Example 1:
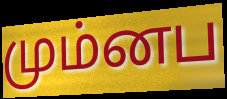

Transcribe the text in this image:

மும்னப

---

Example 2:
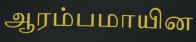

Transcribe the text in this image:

ஆரம்பமாயின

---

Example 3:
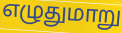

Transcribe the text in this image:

எழுதுமாறு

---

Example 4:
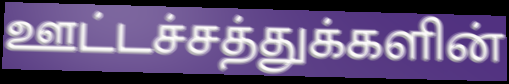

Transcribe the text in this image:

ஊட்டச்சத்துக்களின்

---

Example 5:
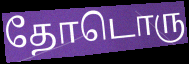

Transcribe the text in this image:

தோடொரு